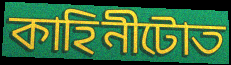
কাহিনীটোত